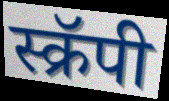
स्क्रॅपी